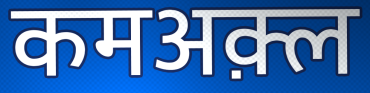
कमअक़्ल